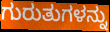
ಗುರುತುಗಳನ್ನು